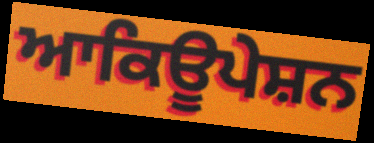
ਆਕਿਊਪੇਸ਼ਨ